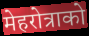
मेहरोत्राको